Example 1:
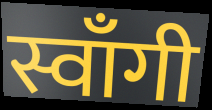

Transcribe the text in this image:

स्वाँगी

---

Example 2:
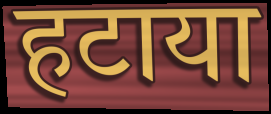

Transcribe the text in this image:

हटाया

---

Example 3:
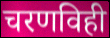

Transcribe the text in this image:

चरणविही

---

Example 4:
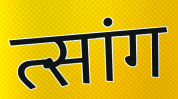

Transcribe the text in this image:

त्सांग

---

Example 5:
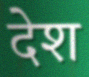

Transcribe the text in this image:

देश